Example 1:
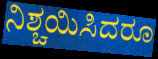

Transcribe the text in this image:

ನಿಶ್ಚಯಿಸಿದರೂ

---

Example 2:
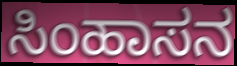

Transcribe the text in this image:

ಸಿಂಹಾಸನ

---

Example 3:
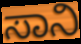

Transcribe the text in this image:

ಸಾನಿ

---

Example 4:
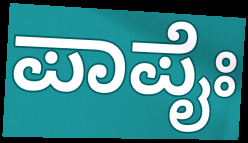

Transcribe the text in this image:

ಪಾಪೈಃ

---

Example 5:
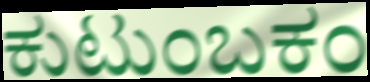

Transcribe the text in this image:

ಕುಟುಂಬಕಂ